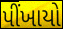
પીંખાયો